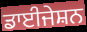
ਡਾਈਜੇਸ਼ਨ